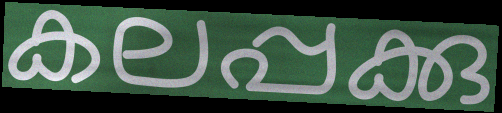
കലപ്പക്കു